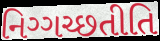
નિગ્ગચ્છતીતિ